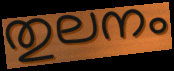
തുലനം